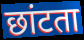
छांटता